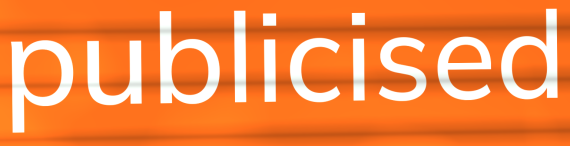
publicised